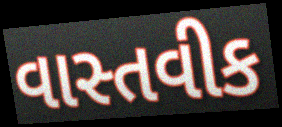
વાસ્તવીક